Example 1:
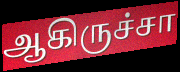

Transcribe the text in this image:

ஆகிருச்சா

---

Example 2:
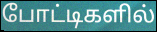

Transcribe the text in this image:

போட்டிகளில்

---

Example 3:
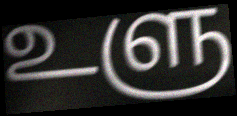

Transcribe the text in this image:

உளு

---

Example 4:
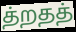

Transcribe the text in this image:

த்றதத்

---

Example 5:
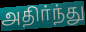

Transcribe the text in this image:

அதிர்ந்து